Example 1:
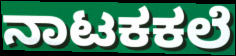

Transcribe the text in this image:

ನಾಟಕಕಲೆ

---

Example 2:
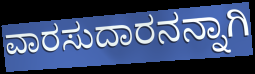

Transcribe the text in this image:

ವಾರಸುದಾರನನ್ನಾಗಿ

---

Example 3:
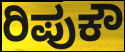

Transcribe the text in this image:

ರಿಪುಕೌ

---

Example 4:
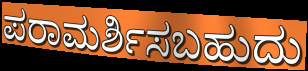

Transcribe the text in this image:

ಪರಾಮರ್ಶಿಸಬಹುದು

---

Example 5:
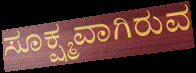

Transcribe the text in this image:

ಸೂಕ್ಷ್ಮವಾಗಿರುವ